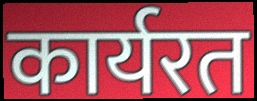
कार्यरत